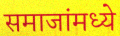
समाजांमध्ये